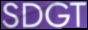
SDGT